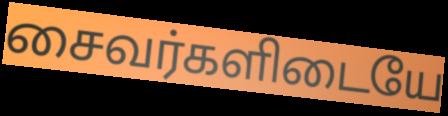
சைவர்களிடையே